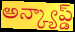
అన్క్యాప్డ్